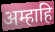
अम्हाहि